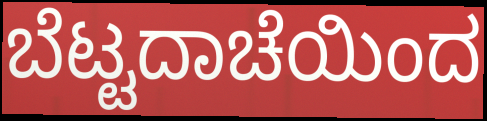
ಬೆಟ್ಟದಾಚೆಯಿಂದ